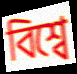
বিশ্বে